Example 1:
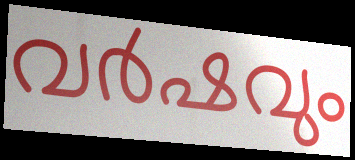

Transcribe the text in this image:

വർഷവും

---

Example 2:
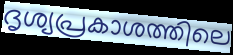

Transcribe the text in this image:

ദൃശ്യപ്രകാശത്തിലെ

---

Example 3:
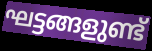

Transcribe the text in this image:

ഘട്ടങ്ങളുണ്ട്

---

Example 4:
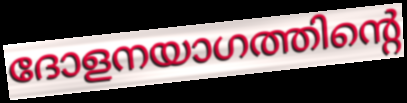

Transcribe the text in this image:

ദോളനയാഗത്തിന്റെ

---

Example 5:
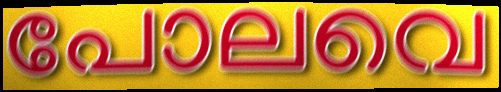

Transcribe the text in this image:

പോലവെ